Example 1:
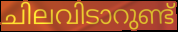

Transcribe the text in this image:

ചിലവിടാറുണ്ട്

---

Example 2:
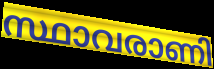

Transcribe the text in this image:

സ്ഥാവരാണി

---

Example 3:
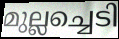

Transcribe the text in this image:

മുല്ലച്ചെടി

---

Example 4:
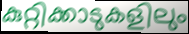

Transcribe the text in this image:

കുറ്റിക്കാടുകളിലും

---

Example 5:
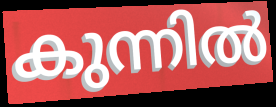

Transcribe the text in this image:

കുന്നിൽ